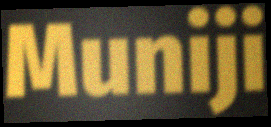
Muniji